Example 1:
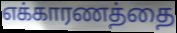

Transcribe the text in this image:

எக்காரணத்தை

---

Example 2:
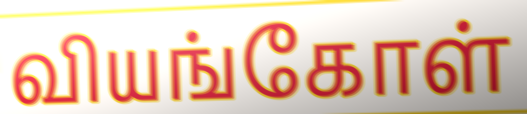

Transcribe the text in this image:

வியங்கோள்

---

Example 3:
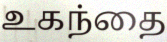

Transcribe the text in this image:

உகந்தை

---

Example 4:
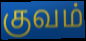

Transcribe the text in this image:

குவம்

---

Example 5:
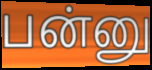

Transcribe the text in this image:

பன்னு